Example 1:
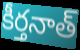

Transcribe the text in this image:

కీర్తనాత్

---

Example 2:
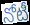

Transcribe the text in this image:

నోటీ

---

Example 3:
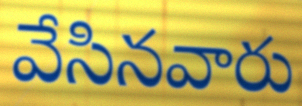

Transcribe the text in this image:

వేసినవారు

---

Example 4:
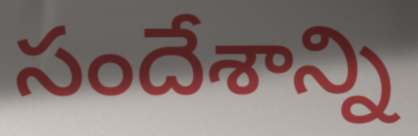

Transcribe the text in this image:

సందేశాన్ని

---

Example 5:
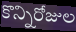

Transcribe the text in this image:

కొన్నిరోజుల